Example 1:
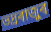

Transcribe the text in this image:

ভদ্ৰৰাজুৰ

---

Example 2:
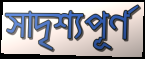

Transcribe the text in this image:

সাদৃশ্যপূৰ্ণ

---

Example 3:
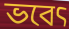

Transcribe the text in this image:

ভবেৎ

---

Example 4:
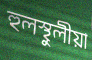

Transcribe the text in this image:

হুলস্থুলীয়া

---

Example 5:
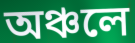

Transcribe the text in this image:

অঞ্চলে